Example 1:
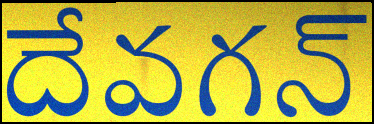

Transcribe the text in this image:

దేవగన్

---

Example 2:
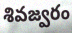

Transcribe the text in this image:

శివజ్వరం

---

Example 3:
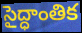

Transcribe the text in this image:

సైద్ధాంతిక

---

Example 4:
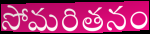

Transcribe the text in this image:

సోమరితనం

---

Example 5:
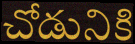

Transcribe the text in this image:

చోడునికి